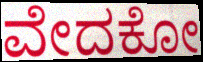
ವೇದಕೋ